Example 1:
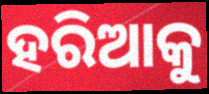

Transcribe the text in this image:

ହରିଆକୁ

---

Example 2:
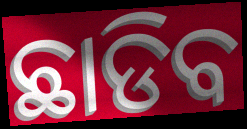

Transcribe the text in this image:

ଛାଡିବ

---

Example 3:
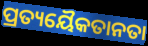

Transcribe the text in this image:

ପ୍ରତ୍ୟୟୈକତାନତା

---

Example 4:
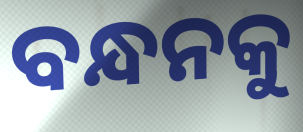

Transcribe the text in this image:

ବନ୍ଧନକୁ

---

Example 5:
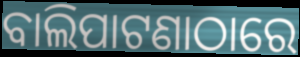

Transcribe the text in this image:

ବାଲିପାଟଣାଠାରେ